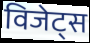
विजेट्स